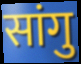
सांगु